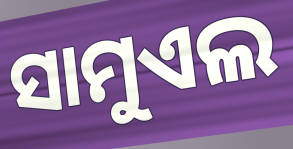
ସାମୁଏଲ